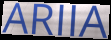
ARIIA